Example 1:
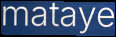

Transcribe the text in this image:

mataye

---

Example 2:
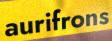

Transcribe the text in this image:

aurifrons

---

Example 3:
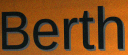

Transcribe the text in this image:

Berth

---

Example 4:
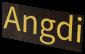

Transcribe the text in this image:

Angdi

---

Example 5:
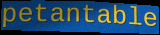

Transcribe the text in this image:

petantable